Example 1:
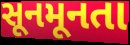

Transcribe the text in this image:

સૂનમૂનતા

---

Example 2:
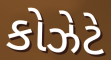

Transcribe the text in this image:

કોઝેટે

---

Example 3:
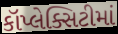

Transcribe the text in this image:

કૉપ્લેક્સિટીમાં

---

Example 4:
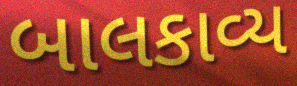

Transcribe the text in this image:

બાલકાવ્ય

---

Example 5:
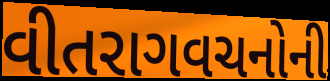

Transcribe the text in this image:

વીતરાગવચનોની